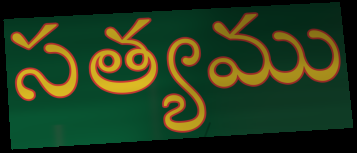
సత్యము